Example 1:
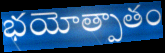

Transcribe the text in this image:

భయోత్పాతం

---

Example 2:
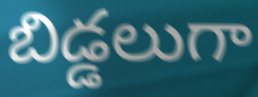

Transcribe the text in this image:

బిడ్డలుగా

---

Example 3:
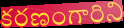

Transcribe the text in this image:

కరణంగారిని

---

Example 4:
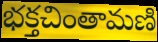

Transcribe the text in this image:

భక్తచింతామణి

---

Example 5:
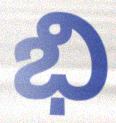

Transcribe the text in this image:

భి